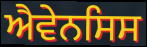
ਐਵੇਨਸਿਸ